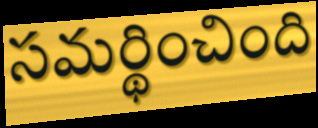
సమర్థించింది